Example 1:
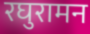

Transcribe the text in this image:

रघुरामन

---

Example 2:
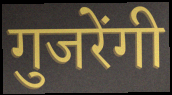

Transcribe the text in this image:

गुजरेंगी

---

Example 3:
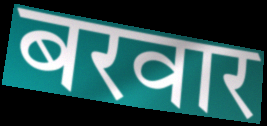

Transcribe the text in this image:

बरवार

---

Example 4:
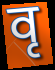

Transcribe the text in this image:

वृ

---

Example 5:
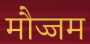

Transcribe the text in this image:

मौज्जम